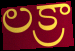
లక్రా